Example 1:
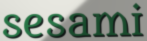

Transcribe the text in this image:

sesami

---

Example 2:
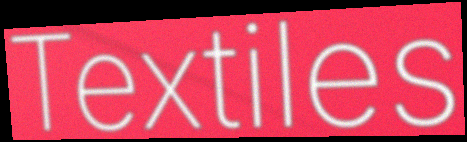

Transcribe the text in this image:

Textiles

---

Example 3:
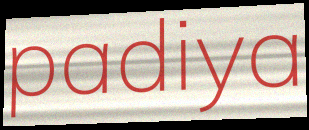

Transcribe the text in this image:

padiya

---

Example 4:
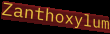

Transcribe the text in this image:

Zanthoxylum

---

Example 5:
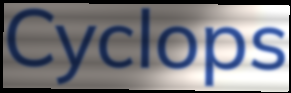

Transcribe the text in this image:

Cyclops